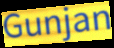
Gunjan